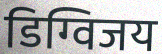
डिग्विजय